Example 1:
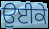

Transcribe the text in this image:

ਉਈਕੇ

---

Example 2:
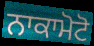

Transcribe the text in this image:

ਨਾਕਾਮੋਟੋ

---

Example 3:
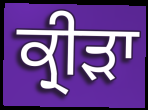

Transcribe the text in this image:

ਕ੍ਰੀੜਾ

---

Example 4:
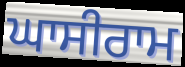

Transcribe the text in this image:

ਘਾਸੀਰਾਮ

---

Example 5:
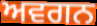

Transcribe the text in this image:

ਅਵਗਨ